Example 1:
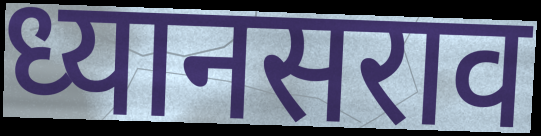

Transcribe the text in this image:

ध्यानसराव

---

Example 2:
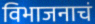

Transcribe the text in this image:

विभाजनाचं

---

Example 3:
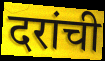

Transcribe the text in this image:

दरांची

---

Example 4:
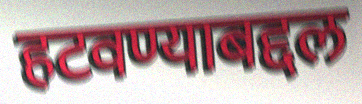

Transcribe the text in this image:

हटवण्याबद्दल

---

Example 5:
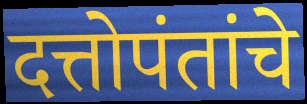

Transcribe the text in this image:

दत्तोपंतांचे